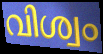
വിശ്വം